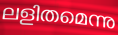
ലളിതമെന്നു